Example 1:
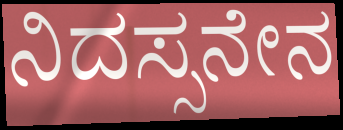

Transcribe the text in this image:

ನಿದಸ್ಸನೇನ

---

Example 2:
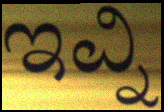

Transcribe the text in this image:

ಇವ್ನಿ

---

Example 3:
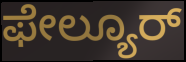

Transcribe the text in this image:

ಫೇಲ್ಯೂರ್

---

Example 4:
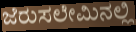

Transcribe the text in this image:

ಜೆರುಸಲೇಮಿನಲ್ಲಿ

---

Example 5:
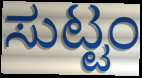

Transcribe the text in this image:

ಸುಟ್ಟಂ